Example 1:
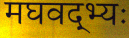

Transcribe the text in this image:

मघवद्भ्यः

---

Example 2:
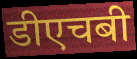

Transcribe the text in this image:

डीएचबी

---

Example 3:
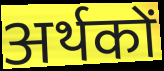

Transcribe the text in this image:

अर्थकों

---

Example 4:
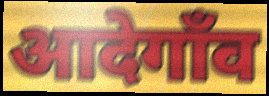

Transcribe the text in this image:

आदेगाँव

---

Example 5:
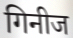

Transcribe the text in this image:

गिनीज